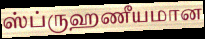
ஸ்ப்ருஹணீயமான